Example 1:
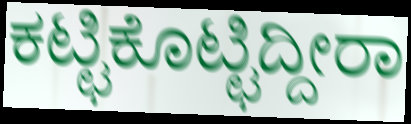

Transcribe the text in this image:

ಕಟ್ಟಿಕೊಟ್ಟಿದ್ದೀರಾ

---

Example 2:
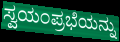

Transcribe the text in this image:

ಸ್ವಯಂಪ್ರಭೆಯನ್ನು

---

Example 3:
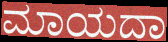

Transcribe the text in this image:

ಮಾಯದಾ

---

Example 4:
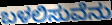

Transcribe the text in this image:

ಬಳಲಿಸುವೆನು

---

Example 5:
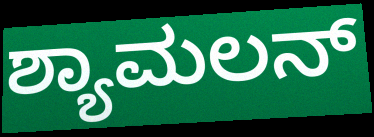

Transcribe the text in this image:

ಶ್ಯಾಮಲನ್